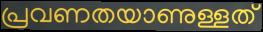
പ്രവണതയാണുള്ളത്